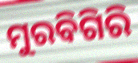
ମୁରବିଗିରି